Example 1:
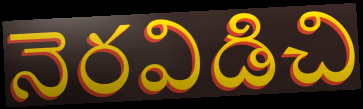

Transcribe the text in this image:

నెరవిడిచి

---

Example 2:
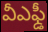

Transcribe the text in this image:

వీఎఫ్డీ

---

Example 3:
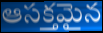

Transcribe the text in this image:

ఆసక్తమైన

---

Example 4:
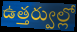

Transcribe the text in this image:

ఉత్తర్వుల్లో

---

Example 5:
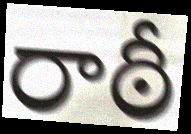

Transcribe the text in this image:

రాఠీ